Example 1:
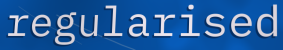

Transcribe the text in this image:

regularised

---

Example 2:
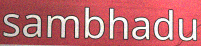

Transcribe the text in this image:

sambhadu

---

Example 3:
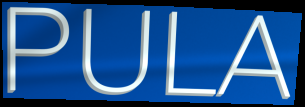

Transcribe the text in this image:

PULA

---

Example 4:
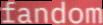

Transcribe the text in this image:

fandom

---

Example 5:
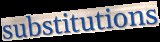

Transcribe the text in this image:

substitutions